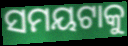
ସମୟଟାକୁ